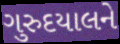
ગુરુદયાલને